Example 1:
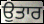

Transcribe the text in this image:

ਉਤਾਰ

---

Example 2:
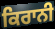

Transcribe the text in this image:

ਕਿਰਾਨੀ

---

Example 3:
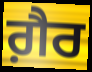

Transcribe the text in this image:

ਗ਼ੈਰ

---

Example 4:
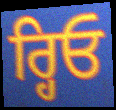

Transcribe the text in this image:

ਰ੍ਹਿਓ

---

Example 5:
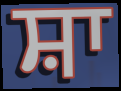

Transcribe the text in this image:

ਸ਼ਾ